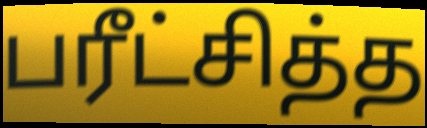
பரீட்சித்த